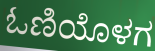
ಓಣಿಯೊಳಗ